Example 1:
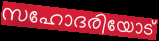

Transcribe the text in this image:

സഹോദരിയോട്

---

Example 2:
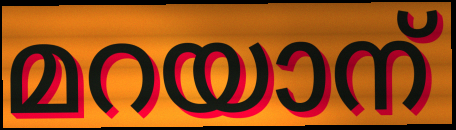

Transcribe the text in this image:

മറയാന്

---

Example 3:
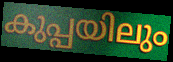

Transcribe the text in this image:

കുപ്പയിലും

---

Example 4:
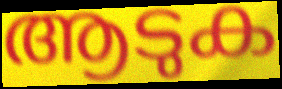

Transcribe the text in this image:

ആടുക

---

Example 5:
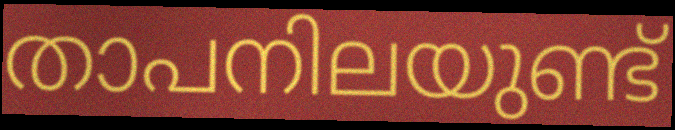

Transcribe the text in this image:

താപനിലയുണ്ട്